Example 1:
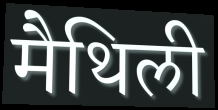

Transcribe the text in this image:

मैथिली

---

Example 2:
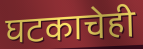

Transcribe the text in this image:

घटकाचेही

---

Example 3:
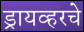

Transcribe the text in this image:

ड्रायव्हरचे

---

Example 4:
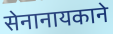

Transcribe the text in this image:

सेनानायकाने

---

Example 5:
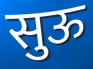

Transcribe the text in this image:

सुऊ